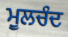
ਮੂਲਚੰਦ